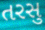
તરસુ